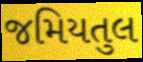
જમિયતુલ